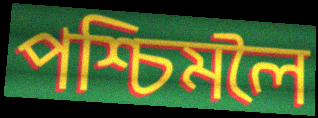
পশ্চিমলৈ